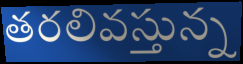
తరలివస్తున్న